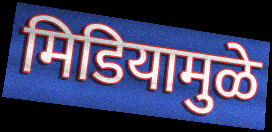
मिडियामुळे